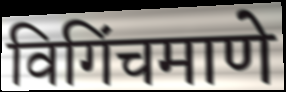
विगिंचमाणे